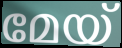
മേയ്